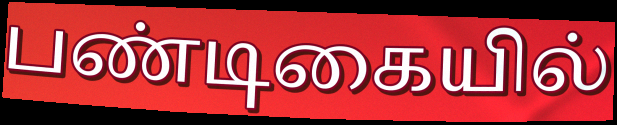
பண்டிகையில்